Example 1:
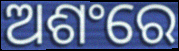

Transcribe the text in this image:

ଅଶଂରେ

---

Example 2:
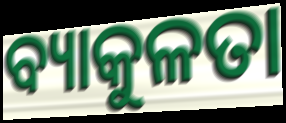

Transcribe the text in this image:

ବ୍ୟାକୁଳତା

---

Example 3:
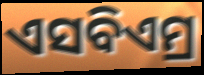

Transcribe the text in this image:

ଏସବିଏମ୍ର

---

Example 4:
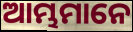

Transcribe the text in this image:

ଆମ୍ଭମାନେ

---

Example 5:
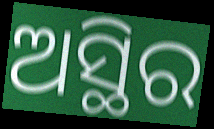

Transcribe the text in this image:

ଅସ୍ଥିର